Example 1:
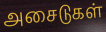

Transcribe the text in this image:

அசைடுகள்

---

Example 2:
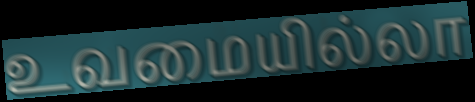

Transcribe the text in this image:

உவமையில்லா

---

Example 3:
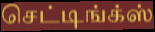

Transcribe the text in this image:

செட்டிங்க்ஸ்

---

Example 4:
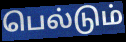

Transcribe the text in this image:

பெல்டும்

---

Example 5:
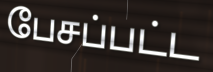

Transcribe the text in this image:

பேசப்பட்ட